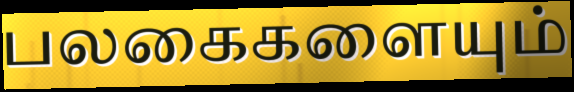
பலகைகளையும்